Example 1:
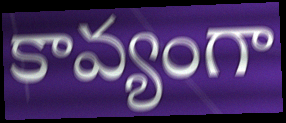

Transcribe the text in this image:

కావ్యంగా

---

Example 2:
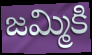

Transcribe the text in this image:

జమ్మికి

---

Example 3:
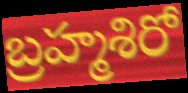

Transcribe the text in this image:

బ్రహ్మశిరో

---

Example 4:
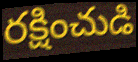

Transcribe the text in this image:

రక్షించుడి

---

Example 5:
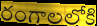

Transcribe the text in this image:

రంగాలలోకి